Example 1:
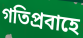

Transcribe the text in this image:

গতিপ্রবাহে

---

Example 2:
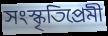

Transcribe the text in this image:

সংস্কৃতিপ্রেমী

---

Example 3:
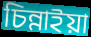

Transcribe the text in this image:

চিন্নাইয়া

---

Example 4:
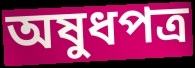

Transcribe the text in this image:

অষুধপত্র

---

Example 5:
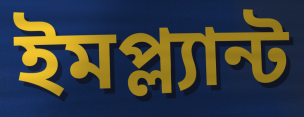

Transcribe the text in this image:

ইমপ্ল্যান্ট